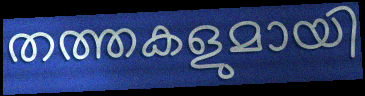
തത്തകളുമായി